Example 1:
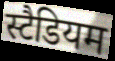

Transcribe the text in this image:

स्टैडियम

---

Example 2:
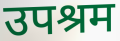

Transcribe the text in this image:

उपश्रम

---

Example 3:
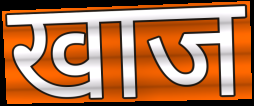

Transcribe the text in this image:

खाज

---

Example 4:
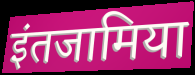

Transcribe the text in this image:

इंतजामिया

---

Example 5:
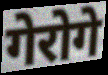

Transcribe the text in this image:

गेरोगे